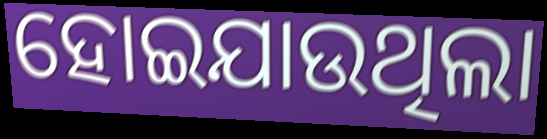
ହୋଇଯାଉଥିଲା